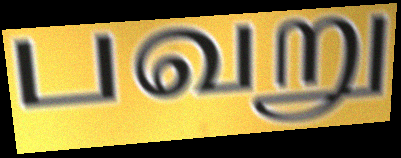
பவறு